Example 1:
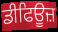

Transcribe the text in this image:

ਡੀਫਿਊਜ਼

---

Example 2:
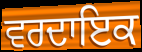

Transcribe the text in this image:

ਵਰਦਾਇਕ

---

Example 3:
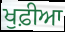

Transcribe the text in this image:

ਖੁਫ਼ੀਆ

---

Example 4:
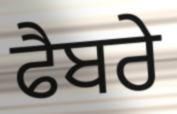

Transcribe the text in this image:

ਫੈਬਰੇ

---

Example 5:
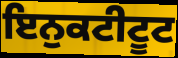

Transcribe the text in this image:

ਇਨੁਕਟੀਟੂਟ